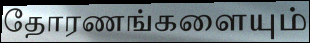
தோரணங்களையும்